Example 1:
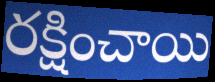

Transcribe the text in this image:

రక్షించాయి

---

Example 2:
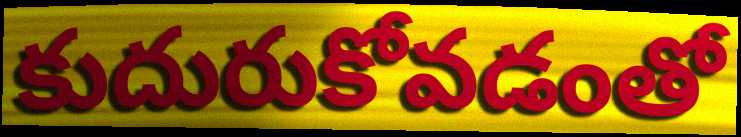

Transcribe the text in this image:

కుదురుకోవడంతో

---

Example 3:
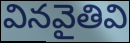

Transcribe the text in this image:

వినవైతివి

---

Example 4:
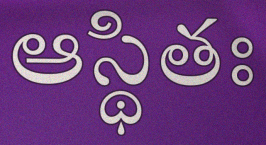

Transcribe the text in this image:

ఆస్థితః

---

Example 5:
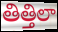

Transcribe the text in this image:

తిత్తిలా